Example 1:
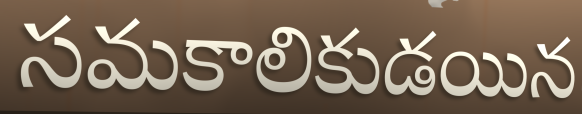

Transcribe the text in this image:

సమకాలికుడయిన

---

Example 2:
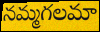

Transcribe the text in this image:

నమ్మగలమా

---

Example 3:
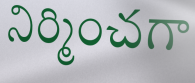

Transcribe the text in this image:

నిర్మించగా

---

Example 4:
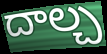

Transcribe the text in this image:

దాల్చ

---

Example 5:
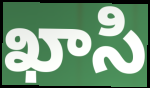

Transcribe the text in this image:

ఖాసి